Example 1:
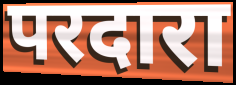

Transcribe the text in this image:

परदारा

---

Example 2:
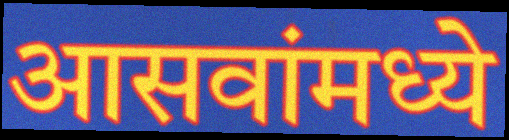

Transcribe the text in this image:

आसवांमध्ये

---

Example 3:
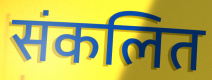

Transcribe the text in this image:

संकलित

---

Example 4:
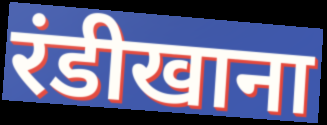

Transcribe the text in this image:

रंडीखाना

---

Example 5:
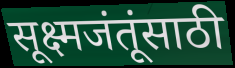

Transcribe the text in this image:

सूक्ष्मजंतूंसाठी